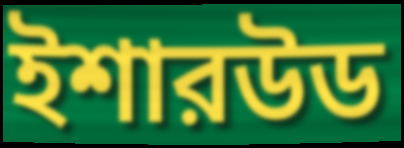
ইশারউড